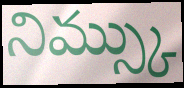
నిమ్స్కు